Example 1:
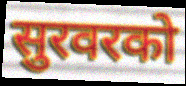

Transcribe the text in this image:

सुरवरको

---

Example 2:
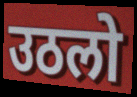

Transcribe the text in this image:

उठलो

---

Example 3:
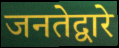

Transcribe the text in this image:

जनतेद्वारे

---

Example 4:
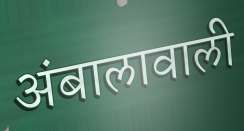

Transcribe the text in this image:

अंबालावाली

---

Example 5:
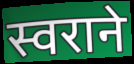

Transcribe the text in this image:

स्वराने